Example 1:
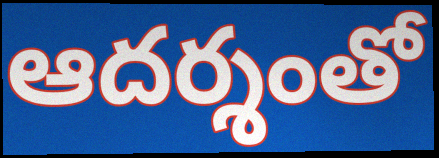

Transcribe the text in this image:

ఆదర్శంతో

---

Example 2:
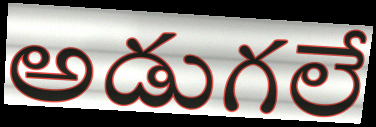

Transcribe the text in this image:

అడుగలే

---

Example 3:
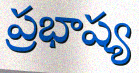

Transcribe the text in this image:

ప్రభాష్య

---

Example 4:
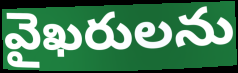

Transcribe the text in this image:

వైఖరులను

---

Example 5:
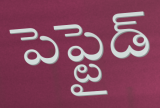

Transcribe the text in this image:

పెప్టైడ్